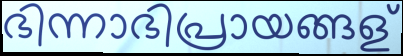
ഭിന്നാഭിപ്രായങ്ങള്